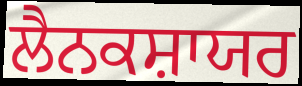
ਲੈਨਕਸ਼ਾਯਰ